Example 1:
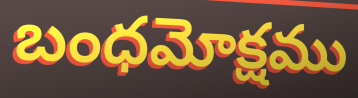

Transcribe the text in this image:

బంధమోక్షము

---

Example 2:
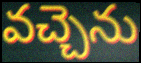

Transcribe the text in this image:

వచ్చెను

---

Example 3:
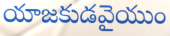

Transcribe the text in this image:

యాజకుడవైయుం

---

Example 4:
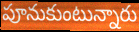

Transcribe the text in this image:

పూనుకుంటున్నారు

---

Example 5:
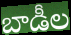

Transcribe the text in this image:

బాడీల